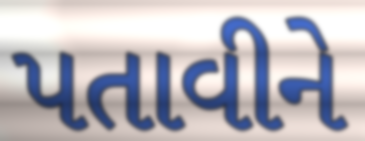
પતાવીને